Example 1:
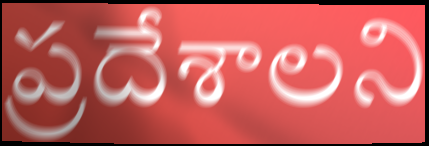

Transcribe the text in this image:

ప్రదేశాలని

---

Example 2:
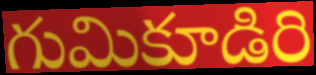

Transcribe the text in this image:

గుమికూడిరి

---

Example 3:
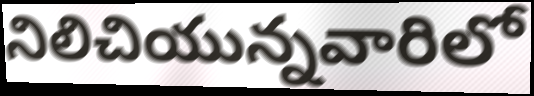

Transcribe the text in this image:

నిలిచియున్నవారిలో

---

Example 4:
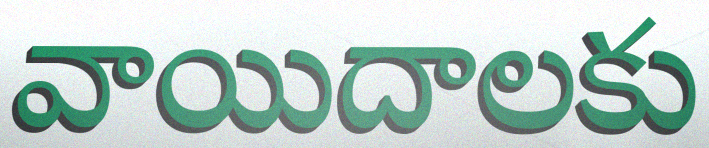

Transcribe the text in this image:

వాయిదాలకు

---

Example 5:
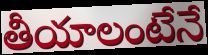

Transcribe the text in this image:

తీయాలంటేనే